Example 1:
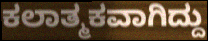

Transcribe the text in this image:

ಕಲಾತ್ಮಕವಾಗಿದ್ದು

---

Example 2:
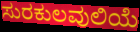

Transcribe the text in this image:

ಸುರಕುಲವುಲಿಯೆ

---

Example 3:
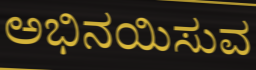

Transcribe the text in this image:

ಅಭಿನಯಿಸುವ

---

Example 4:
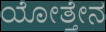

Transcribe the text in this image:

ಯೋತ್ತೇನ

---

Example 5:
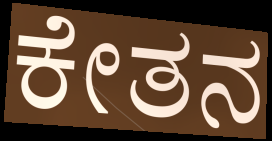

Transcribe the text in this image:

ಕೇತನ